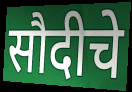
सौदीचे